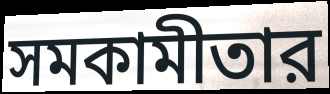
সমকামীতার